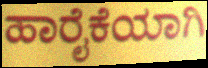
ಹಾರೈಕೆಯಾಗಿ